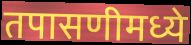
तपासणीमध्ये